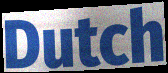
Dutch